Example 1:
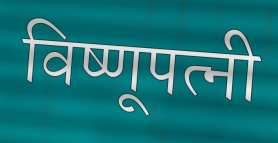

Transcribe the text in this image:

विष्णूपत्नी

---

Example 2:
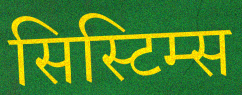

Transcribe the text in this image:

सिस्टिम्स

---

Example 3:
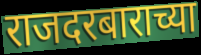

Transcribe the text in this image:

राजदरबाराच्या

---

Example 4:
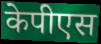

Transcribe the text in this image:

केपीएस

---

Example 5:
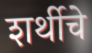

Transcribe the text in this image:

शर्थीचे